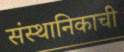
संस्थानिकाची